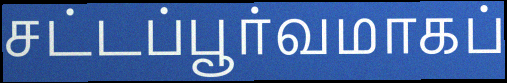
சட்டப்பூர்வமாகப்